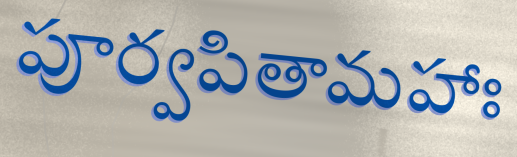
పూర్వపితామహాః